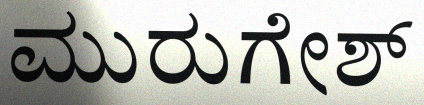
ಮುರುಗೇಶ್